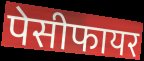
पेसीफायर